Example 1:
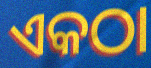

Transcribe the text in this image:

ଏକଠା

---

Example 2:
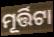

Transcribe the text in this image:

ମୂର୍ତ୍ତିଟା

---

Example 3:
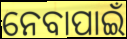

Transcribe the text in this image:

ନେବାପାଇଁ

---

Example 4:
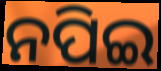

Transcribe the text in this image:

ନପିଇ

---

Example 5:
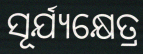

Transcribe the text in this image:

ସୂର୍ଯ୍ୟକ୍ଷେତ୍ର